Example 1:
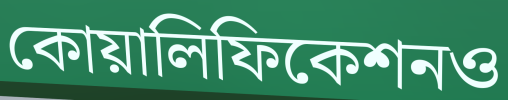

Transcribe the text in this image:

কোয়ালিফিকেশনও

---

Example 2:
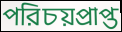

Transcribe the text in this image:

পরিচয়প্রাপ্ত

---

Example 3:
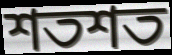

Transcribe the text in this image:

শতশত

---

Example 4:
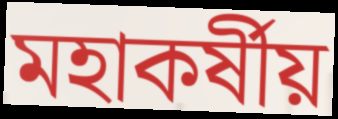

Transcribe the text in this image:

মহাকর্ষীয়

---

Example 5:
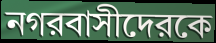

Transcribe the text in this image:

নগরবাসীদেরকে